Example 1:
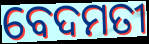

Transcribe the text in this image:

ବେଦମତୀ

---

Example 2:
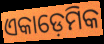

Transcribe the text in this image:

ଏକାଡ଼େମିକ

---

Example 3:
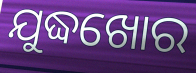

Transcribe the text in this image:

ଯୁଦ୍ଧଖୋର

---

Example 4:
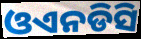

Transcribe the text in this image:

ଓଏନଡିସି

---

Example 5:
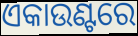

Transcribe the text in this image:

ଏକାଉଣ୍ଟରେ